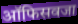
ऑफिसवजा